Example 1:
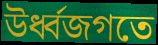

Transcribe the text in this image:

উর্ধ্বজগতে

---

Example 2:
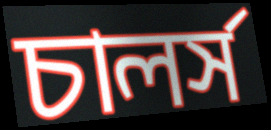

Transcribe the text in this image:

চালর্স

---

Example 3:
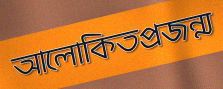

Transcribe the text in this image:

আলোকিতপ্রজন্ম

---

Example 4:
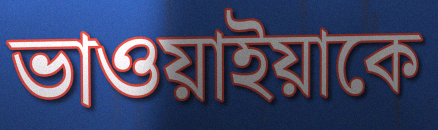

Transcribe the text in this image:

ভাওয়াইয়াকে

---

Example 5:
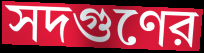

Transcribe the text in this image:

সদগুণের